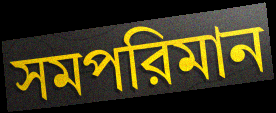
সমপরিমান